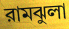
রামঝুলা